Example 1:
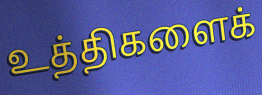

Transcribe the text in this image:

உத்திகளைக்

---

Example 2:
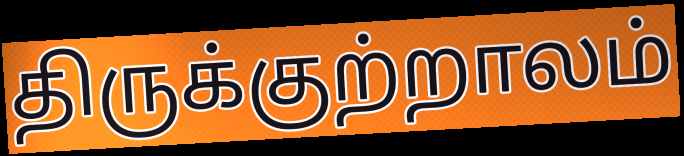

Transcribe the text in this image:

திருக்குற்றாலம்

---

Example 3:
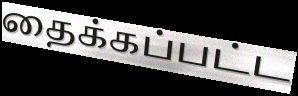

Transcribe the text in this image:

தைக்கப்பட்ட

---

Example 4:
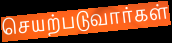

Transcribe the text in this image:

செயற்படுவார்கள்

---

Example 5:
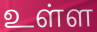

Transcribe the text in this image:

உள்ள